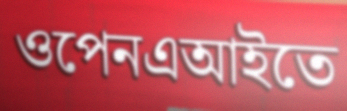
ওপেনএআইতে